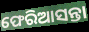
ଫେରିଆସନ୍ତା